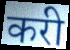
करी